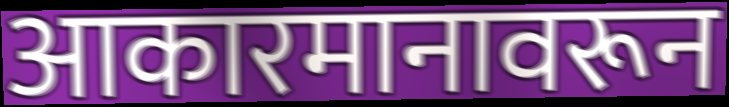
आकारमानावरून